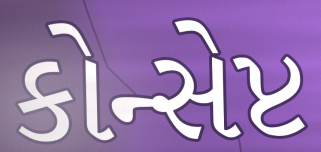
કોન્સેપ્ટ